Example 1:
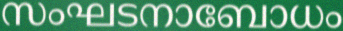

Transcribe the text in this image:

സംഘടനാബോധം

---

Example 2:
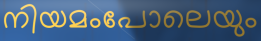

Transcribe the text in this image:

നിയമംപോലെയും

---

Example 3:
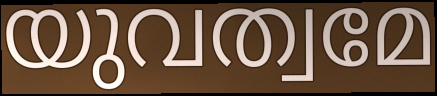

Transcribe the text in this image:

യുവത്വമേ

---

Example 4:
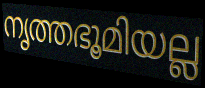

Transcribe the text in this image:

നൃത്തഭൂമിയല്ല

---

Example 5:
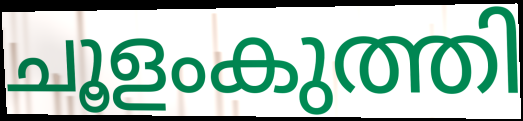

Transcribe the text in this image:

ചൂളംകുത്തി